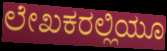
ಲೇಖಕರಲ್ಲಿಯೂ